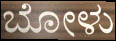
ಬೋಳು